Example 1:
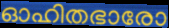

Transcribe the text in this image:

ഓഹിതഭാരോ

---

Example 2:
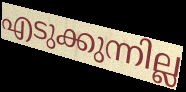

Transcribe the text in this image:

എടുക്കുന്നില്ല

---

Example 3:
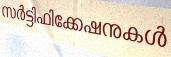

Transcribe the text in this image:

സർട്ടിഫിക്കേഷനുകൾ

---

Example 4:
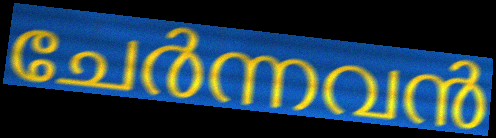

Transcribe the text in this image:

ചേർന്നവൻ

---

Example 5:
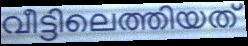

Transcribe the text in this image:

വീട്ടിലെത്തിയത്